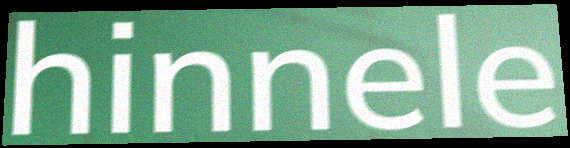
hinnele